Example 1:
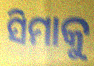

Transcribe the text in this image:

ସିମାକୁ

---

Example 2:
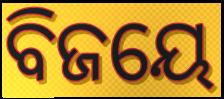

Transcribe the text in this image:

ବିଜୟେ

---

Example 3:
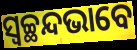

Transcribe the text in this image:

ସ୍ୱଚ୍ଛନ୍ଦଭାବେ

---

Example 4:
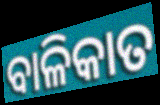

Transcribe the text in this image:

ବାଳିକାତ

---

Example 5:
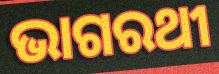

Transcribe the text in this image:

ଭାଗରଥୀ